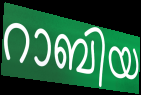
റാബിയ